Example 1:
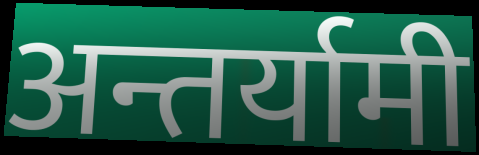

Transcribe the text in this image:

अन्‍तर्यामी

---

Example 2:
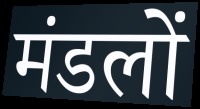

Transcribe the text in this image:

मंडलों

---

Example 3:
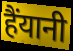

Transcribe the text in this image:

हैंयानी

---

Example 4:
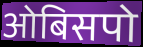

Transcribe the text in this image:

ओबिसपो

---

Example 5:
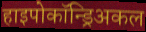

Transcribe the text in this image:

हाइपोकॉन्ड्रिअकल